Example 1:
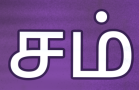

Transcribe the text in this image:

சம்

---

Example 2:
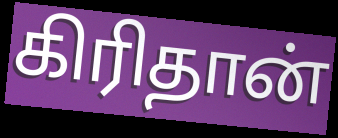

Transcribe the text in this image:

கிரிதான்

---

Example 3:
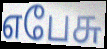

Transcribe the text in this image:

எபேசு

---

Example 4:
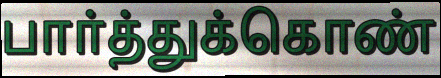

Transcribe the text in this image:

பார்த்துக்கொண்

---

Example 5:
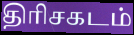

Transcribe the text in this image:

திரிசகடம்